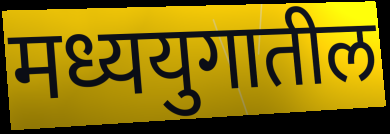
मध्ययुगातील